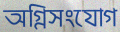
অগ্নিসংযোগ